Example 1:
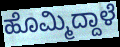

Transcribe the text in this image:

ಹೊಮ್ಮಿದ್ದಾಳೆ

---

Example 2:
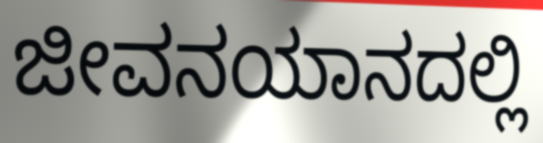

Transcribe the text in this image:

ಜೀವನಯಾನದಲ್ಲಿ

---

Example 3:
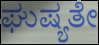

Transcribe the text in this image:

ಘುಷ್ಯತೇ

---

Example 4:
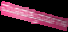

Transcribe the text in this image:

ಮೂವತ್ತುವರ್ಷಗಳ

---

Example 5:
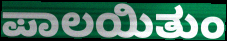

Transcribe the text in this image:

ಪಾಲಯಿತುಂ